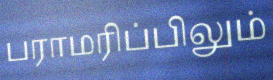
பராமரிப்பிலும்